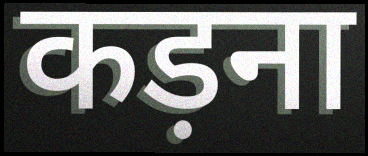
कड़ना